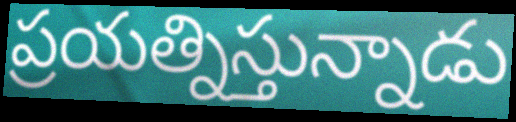
ప్రయత్నిస్తున్నాడు